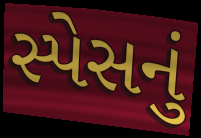
સ્પેસનું